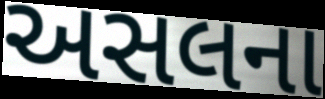
અસલના